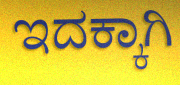
ಇದಕ್ಕಾಗಿ